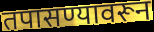
तपासण्यावरून